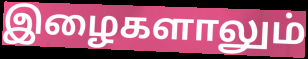
இழைகளாலும்